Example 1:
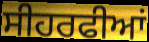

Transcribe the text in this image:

ਸੀਹਰਫੀਆਂ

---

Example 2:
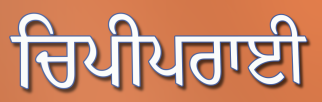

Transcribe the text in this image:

ਚਿਪੀਪਰਾਈ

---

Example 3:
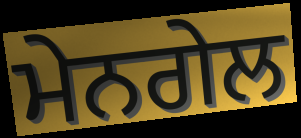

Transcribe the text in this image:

ਮੇਨਗੇਲ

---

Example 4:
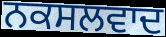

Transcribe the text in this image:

ਨਕਸਲਵਾਦ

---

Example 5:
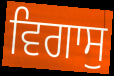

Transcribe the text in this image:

ਵਿਗਾਸੁ